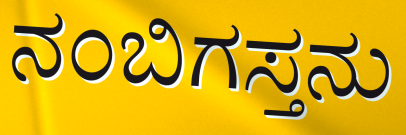
ನಂಬಿಗಸ್ತನು